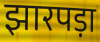
झारपड़ा